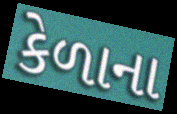
કેળાના